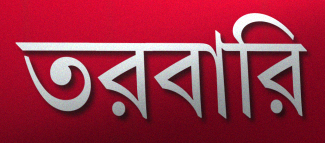
তরবারি